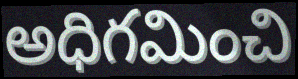
అధిగమించి